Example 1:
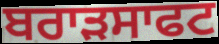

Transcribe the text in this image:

ਬਰਾੜਸਾਫਟ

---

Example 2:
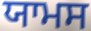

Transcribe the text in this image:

ਯਾਮਸ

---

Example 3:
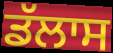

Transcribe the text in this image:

ਡੱਲਾਸ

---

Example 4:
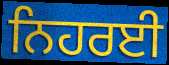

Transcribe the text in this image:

ਨਿਹਰਈ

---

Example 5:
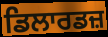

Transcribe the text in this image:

ਡਿਲਾਰਡਜ਼